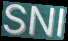
SNl